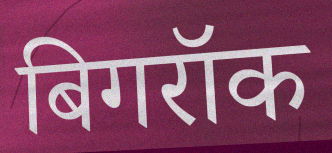
बिगरॉक